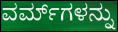
ವರ್ಮ್‌ಗಳನ್ನು